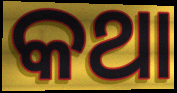
କଥା